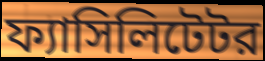
ফ্যাসিলিটেটর